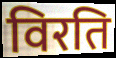
विरति